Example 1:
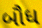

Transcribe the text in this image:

બૌધ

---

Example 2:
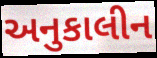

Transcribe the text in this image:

અનુકાલીન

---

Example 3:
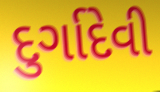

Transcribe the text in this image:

દુર્ગાદેવી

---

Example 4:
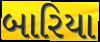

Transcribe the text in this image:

બારિયા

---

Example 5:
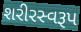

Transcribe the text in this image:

શરીરસ્વરૂપ